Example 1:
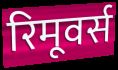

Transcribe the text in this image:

रिमूवर्स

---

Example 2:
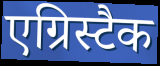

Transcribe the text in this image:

एग्रिस्टैक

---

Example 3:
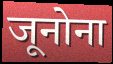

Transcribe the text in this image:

जूनोना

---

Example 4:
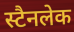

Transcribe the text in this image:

स्टैनलेक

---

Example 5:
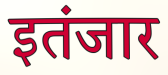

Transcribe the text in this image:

इतंजार